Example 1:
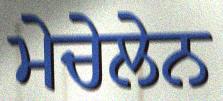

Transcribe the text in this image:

ਮੇਚੇਲੇਨ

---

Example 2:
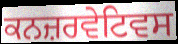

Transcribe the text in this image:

ਕਨਜ਼ਰਵੇਟਿਵਸ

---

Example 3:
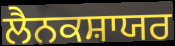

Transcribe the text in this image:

ਲੈਨਕਸ਼ਾਯਰ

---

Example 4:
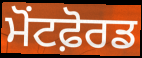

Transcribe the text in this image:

ਮੋਂਟਫ਼ੋਰਡ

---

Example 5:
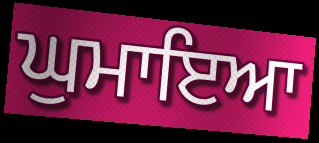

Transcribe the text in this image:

ਘੁਮਾਇਆ